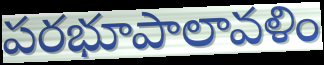
పరభూపాలావళిం